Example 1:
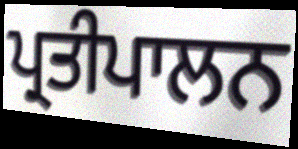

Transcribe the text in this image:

ਪ੍ਰਤੀਪਾਲਨ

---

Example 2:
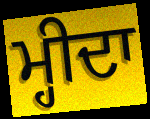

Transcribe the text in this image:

ਮ੍ਹੀਦਾ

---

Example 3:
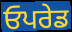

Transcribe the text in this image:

ਓਪਰੇਡ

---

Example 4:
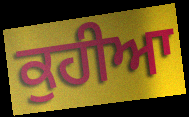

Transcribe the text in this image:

ਕੁਹੀਆ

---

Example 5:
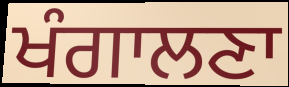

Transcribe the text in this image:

ਖੰਗਾਲਣਾ